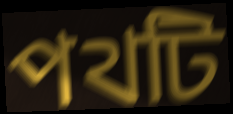
পথটি